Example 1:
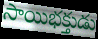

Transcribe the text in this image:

సాయిభక్తుడు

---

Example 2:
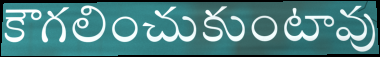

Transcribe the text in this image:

కౌగలించుకుంటావు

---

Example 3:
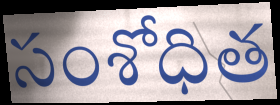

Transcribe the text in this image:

సంశోధిత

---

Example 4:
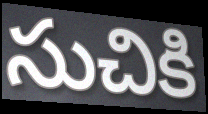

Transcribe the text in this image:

సుచికి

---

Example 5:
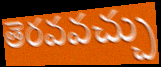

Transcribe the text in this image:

తెరవవచ్చు